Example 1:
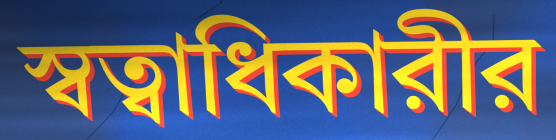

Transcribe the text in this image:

স্বত্বাধিকারীর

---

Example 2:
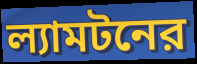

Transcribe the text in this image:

ল্যামটনের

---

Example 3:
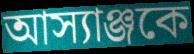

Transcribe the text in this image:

আস্যাঞ্জকে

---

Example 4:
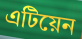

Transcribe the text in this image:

এটিয়েন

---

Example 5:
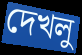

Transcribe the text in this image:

দেখলু